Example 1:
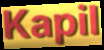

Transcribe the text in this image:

Kapil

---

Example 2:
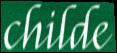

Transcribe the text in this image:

childe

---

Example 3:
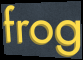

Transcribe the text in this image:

frog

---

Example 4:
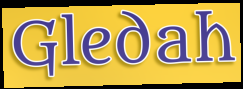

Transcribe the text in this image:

Gledah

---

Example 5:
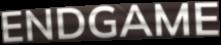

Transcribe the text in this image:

ENDGAME